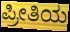
ಪ್ರೀತಿಯ